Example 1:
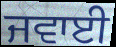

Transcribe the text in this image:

ਜਵਾਈ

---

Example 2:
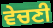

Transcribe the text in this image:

ਵੇਚਣੀ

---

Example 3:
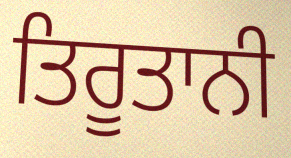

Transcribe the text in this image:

ਤਿਰੂਤਾਨੀ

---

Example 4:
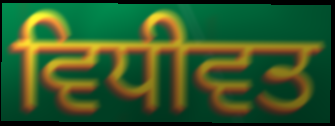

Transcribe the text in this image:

ਵਿਧੀਵਤ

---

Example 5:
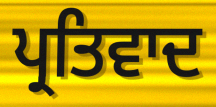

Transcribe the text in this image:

ਪ੍ਰਤਿਵਾਦ